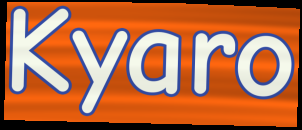
Kyaro